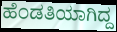
ಹೆಂಡತಿಯಾಗಿದ್ದ